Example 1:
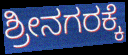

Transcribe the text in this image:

ಶ್ರೀನಗರಕ್ಕೆ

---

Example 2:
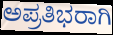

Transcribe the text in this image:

ಅಪ್ರತಿಭರಾಗಿ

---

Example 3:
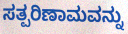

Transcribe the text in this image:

ಸತ್ಪರಿಣಾಮವನ್ನು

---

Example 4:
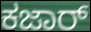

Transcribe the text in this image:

ಕಜಾರ್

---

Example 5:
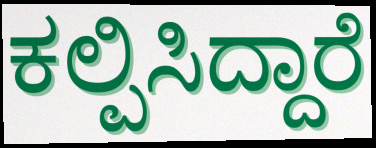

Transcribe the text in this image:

ಕಲ್ಪಿಸಿದ್ದಾರೆ